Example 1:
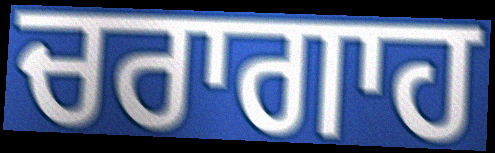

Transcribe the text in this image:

ਚਰਾਗਾਹ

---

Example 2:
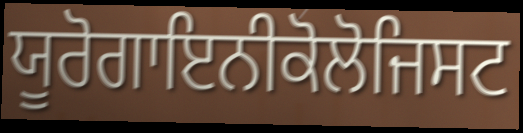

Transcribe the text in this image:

ਯੂਰੋਗਾਇਨੀਕੋਲੋਜਿਸਟ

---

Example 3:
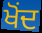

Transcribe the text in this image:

ਖੋਂਦ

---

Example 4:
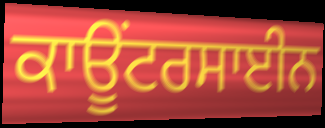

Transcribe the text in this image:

ਕਾਊਂਟਰਸਾਈਨ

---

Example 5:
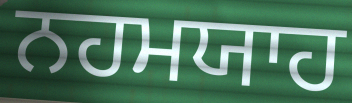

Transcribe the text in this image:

ਨਹਮਯਾਹ